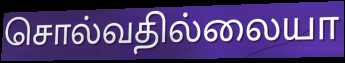
சொல்வதில்லையா